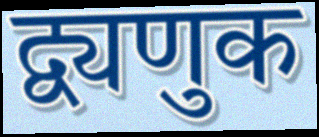
द्व्यणुक